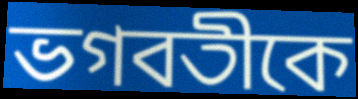
ভগবতীকে